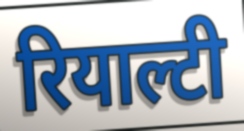
रियाल्टी